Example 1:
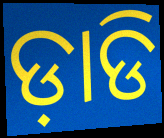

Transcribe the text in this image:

ଡ଼ାଡି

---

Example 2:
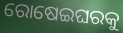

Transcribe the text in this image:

ରୋଷେଇଘରକୁ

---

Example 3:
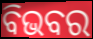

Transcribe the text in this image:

ବିଭବର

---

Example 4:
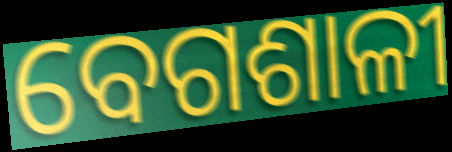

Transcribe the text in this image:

ବେଗଶାଳୀ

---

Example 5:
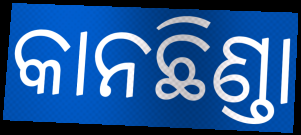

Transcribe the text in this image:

କାନଛିଣ୍ଡା